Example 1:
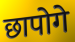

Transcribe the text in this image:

छापोगे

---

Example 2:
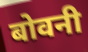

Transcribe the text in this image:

बोवनी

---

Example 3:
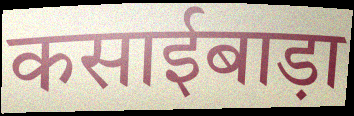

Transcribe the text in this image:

कसाईबाड़ा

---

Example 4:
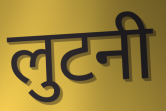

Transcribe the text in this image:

लुटनी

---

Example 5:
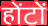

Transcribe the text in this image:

होंटों